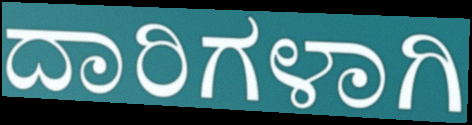
ದಾರಿಗಳಾಗಿ